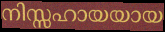
നിസ്സഹായയായ